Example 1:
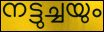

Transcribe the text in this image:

നട്ടുച്ചയും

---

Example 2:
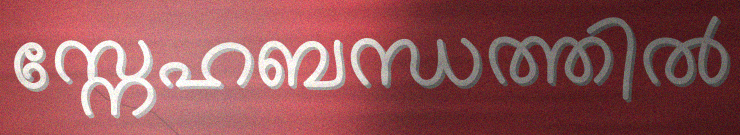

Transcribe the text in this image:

സ്നേഹബന്ധത്തിൽ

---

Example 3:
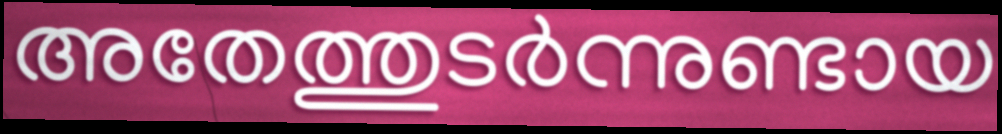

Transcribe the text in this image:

അതേത്തുടർന്നുണ്ടായ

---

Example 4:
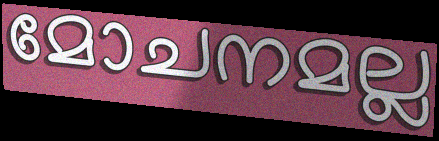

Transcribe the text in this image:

മോചനമല്ല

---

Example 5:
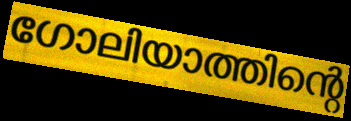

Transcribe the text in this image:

ഗോലിയാത്തിന്റെ